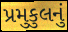
પ્રમુકુલનું